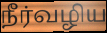
நீர்வழிய